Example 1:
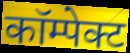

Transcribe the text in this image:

कॉम्पेक्ट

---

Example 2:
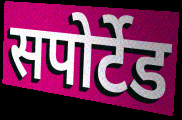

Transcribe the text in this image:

सपोर्टेड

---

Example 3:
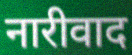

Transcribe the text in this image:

नारीवाद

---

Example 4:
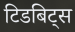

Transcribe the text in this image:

टिडबिट्स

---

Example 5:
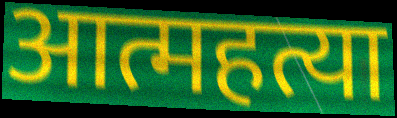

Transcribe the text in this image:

आत्महत्या